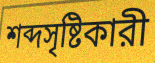
শব্দসৃষ্টিকারী